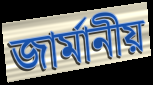
জাৰ্মানীয়